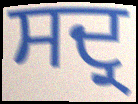
ਸਦ੍ਰ